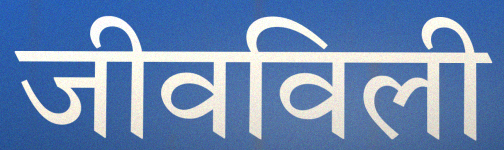
जीवविली